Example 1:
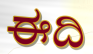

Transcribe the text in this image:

ಈದಿ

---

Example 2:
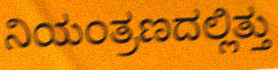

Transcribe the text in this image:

ನಿಯಂತ್ರಣದಲ್ಲಿತ್ತು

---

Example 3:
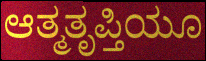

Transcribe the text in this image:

ಆತ್ಮತೃಪ್ತಿಯೂ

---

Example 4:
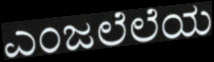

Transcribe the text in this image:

ಎಂಜಲೆಲೆಯ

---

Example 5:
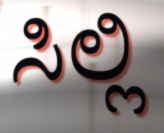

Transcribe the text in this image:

ಸಿಲ್ಲಿ